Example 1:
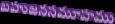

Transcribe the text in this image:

బహుజనసమూహము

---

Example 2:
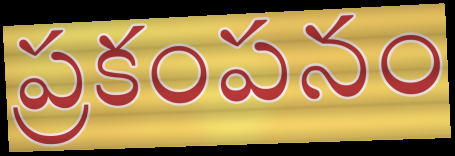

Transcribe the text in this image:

ప్రకంపనం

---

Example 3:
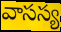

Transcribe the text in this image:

వాసస్య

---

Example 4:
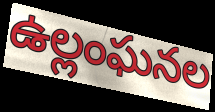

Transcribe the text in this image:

ఉల్లంఘనల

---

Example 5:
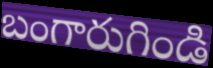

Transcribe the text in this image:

బంగారుగిండి